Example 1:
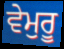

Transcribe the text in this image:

ਵੇਮੁਰੂ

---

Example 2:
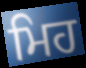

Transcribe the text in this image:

ਮਿਹ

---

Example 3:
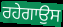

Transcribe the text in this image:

ਰਹੇਗਾਉਸ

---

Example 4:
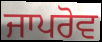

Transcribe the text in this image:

ਜਾਪਰੋਵ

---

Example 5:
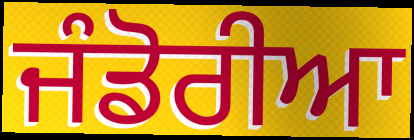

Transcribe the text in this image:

ਜੰਡੋਰੀਆ